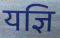
यज्ञि